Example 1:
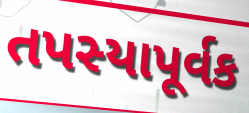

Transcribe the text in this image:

તપસ્યાપૂર્વક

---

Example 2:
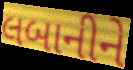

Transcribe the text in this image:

લબાનીને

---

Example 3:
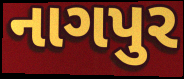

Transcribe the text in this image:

નાગપુર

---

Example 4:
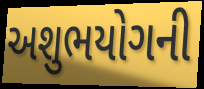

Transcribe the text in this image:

અશુભયોગની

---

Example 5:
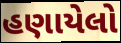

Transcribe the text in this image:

હણાયેલો